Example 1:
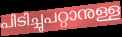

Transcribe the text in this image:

പിടിച്ചുപറ്റാനുള്ള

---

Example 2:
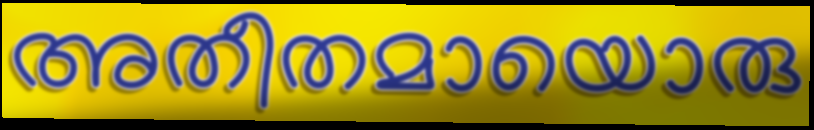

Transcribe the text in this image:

അതീതമായൊരു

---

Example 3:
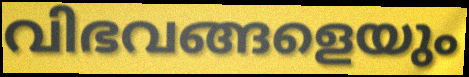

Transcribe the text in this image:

വിഭവങ്ങളെയും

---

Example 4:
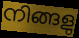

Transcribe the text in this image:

നിങ്ങളു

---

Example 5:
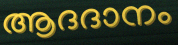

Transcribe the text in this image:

ആദദാനം